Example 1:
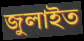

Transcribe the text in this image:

জুলাইত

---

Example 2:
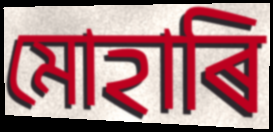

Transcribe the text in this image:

মোহাৰি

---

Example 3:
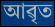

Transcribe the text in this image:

আৱৃত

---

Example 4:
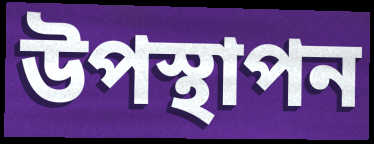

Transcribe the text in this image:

উপস্থাপন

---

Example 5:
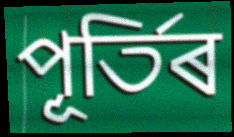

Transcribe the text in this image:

পূৰ্তিৰ